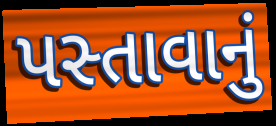
પસ્તાવાનું